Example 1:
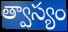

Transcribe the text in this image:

త్వాస్యం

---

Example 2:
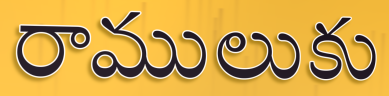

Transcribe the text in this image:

రాములుకు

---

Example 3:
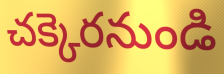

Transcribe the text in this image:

చక్కెరనుండి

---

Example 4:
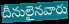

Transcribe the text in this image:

దీనులైనవారు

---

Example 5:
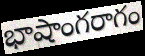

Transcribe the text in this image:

భాషాంగరాగం